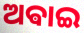
ଅଵାଇ